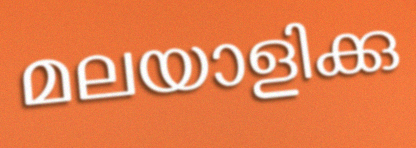
മലയാളിക്കു